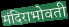
मंदिराभोवती